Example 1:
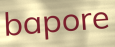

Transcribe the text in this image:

bapore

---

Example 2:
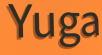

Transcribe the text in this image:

Yuga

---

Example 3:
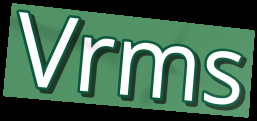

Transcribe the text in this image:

Vrms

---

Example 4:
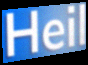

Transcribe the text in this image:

Heil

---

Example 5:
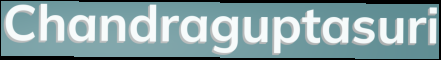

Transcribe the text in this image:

Chandraguptasuri